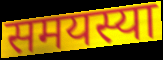
समयस्या